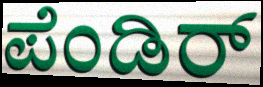
ಪೆಂಡಿರ್